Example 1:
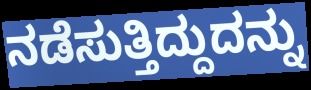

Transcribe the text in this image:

ನಡೆಸುತ್ತಿದ್ದುದನ್ನು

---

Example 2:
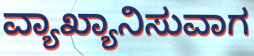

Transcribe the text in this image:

ವ್ಯಾಖ್ಯಾನಿಸುವಾಗ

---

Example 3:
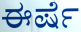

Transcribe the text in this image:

ಈರ್ಷೆ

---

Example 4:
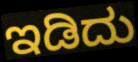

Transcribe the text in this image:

ಇಡಿದು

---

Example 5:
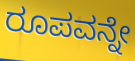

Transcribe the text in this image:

ರೂಪವನ್ನೇ